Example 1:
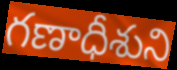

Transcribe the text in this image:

గణాధీశుని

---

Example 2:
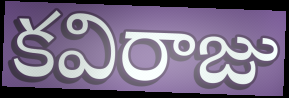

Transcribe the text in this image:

కవిరాజు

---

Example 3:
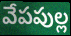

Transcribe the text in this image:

వేపపుల్ల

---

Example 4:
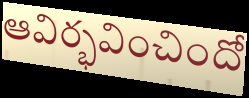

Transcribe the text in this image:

ఆవిర్భవించిందో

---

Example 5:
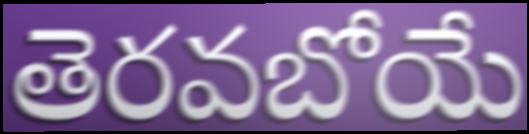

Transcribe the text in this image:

తెరవబోయే